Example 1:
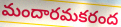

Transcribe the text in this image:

మందారమకరంద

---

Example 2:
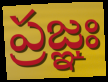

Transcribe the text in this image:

ప్రజ్ఞః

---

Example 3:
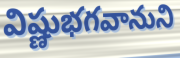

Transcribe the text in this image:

విష్ణుభగవానుని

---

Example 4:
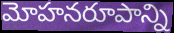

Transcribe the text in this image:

మోహనరూపాన్ని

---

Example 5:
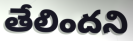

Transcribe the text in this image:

తేలిందని